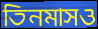
তিনমাসও